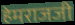
हेमराजजी